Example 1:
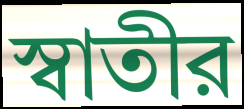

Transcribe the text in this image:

স্বাতীর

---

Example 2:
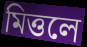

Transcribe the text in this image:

মিত্তলে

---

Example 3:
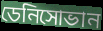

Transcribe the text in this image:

ডেনিসোভান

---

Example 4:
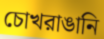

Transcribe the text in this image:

চোখরাঙানি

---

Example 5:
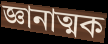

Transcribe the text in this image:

জ্ঞানাত্মক